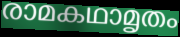
രാമകഥാമൃതം